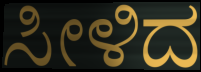
ಸೀಳಿದ